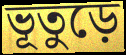
ভূতুড়ে